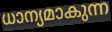
ധാന്യമാകുന്ന